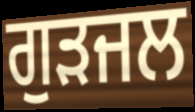
ਗੁੜਜਲ